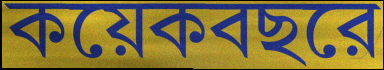
কয়েকবছরে